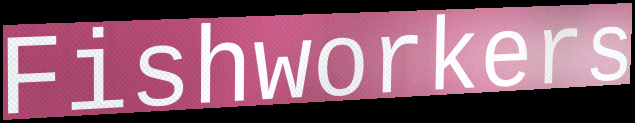
Fishworkers